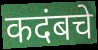
कदंबचे